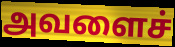
அவளைச்